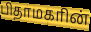
பிதாமகரின்